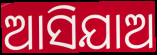
ଆସିଯାଅ